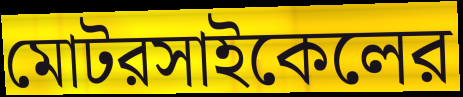
মোটরসাইকেলের